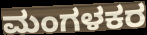
ಮಂಗಳಕರ